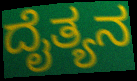
ದೈತ್ಯನ